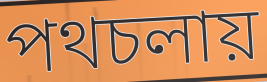
পথচলায়